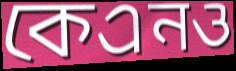
কেএনও